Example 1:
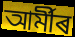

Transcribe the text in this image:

আৰ্মীৰ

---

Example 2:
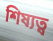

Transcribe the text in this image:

শিষ্যত্ব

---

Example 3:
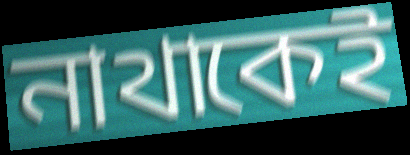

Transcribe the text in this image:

নাথাকেই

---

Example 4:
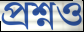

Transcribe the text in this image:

প্ৰশ্নও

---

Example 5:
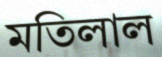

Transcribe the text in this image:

মতিলাল